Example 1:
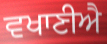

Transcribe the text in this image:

ਵਖਾਣੀਐ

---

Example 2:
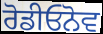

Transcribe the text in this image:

ਰੋਡੀਓਨੋਵ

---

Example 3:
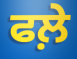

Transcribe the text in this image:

ਫਲ਼ੇ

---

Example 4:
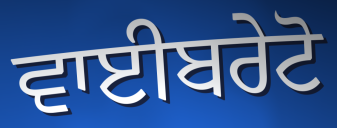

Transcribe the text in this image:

ਵਾਈਬਰੇਟੋ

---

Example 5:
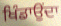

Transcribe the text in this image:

ਖਿੰਡਾਉਂਦਾ